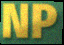
NP